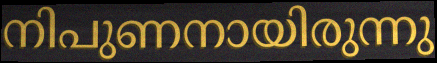
നിപുണനായിരുന്നു